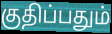
குதிப்பதும்